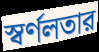
স্বর্ণলতার